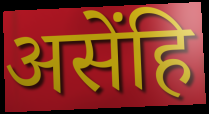
असेंहि